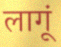
लागूं